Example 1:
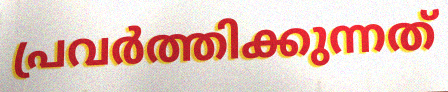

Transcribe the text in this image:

പ്രവർത്തിക്കുന്നത്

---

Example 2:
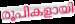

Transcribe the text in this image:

രൂപികളായി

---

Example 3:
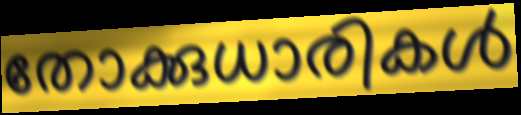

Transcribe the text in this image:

തോക്കുധാരികൾ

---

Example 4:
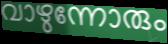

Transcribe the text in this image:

വാഴുന്നോരും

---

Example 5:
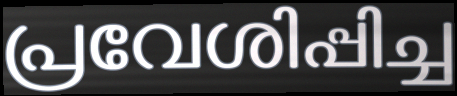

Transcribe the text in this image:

പ്രവേശിപ്പിച്ച